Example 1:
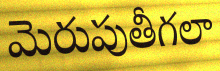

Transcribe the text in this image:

మెరుపుతీగలా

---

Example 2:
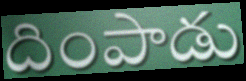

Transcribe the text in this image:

దింపాడు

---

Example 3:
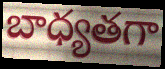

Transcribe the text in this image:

బాధ్యతగా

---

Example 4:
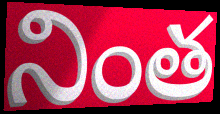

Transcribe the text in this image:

నింత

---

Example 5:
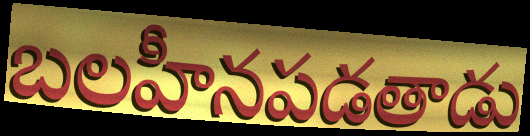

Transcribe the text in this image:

బలహీనపడతాడు